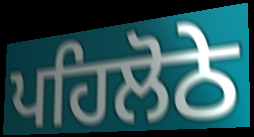
ਪਹਿਲੋਠੇ